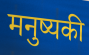
मनुष्यकी